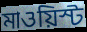
মাওয়িস্ট